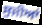
ਸੁਜੀਆਂ